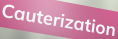
Cauterization